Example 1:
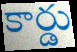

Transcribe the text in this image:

కార్డు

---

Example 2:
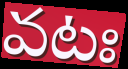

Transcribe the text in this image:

వటః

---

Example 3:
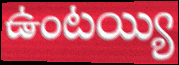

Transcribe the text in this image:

ఉంటయ్యి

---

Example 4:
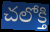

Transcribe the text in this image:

చలోక్తి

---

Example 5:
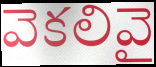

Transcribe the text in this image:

వెకలివై